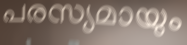
പരസ്യമായും